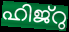
ഹിജ്റു